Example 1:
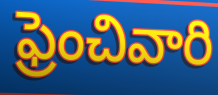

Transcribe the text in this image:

ఫ్రెంచివారి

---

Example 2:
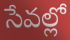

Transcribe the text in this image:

సేవల్లో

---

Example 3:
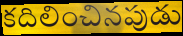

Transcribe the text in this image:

కదిలించినపుడు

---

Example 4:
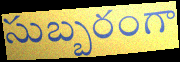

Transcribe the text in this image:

సుబ్బరంగా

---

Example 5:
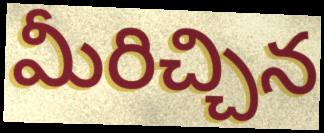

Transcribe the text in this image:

మీరిచ్చిన